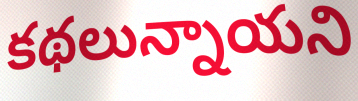
కథలున్నాయని